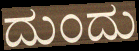
ದುಂದು